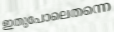
ഇതുപോലെതന്നെ